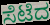
ಸೆಟೆದ